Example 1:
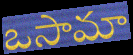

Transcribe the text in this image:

ఒసామా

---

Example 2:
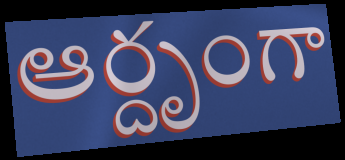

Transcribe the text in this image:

ఆర్దృంగా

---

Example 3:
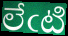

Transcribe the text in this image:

లేఁటి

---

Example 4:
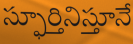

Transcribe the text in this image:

స్ఫూర్తినిస్తూనే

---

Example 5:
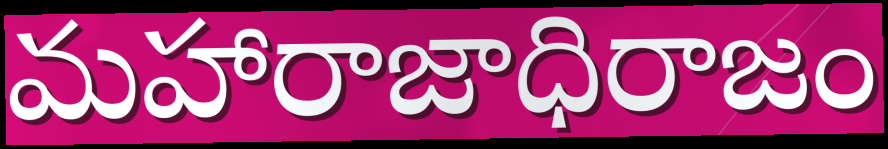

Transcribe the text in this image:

మహారాజాధిరాజం